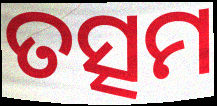
ତତ୍ସମ